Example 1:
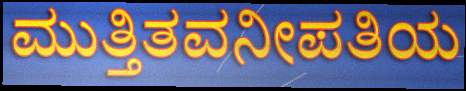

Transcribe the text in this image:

ಮುತ್ತಿತವನೀಪತಿಯ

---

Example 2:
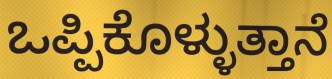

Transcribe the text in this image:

ಒಪ್ಪಿಕೊಳ್ಳುತ್ತಾನೆ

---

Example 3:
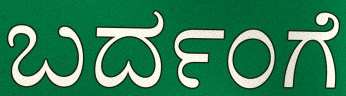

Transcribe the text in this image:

ಬರ್ದಂಗೆ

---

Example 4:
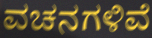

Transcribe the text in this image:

ವಚನಗಳಿವೆ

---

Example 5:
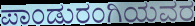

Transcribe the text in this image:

ಪಾಂಡುರಂಗಿಯವರ